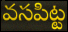
వసపిట్ట